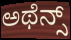
ಅಥೆನ್ಸ್